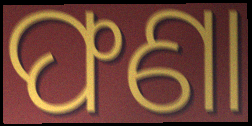
ଫଣା